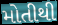
મોતીથી